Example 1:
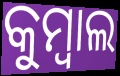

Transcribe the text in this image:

କୁମ୍ବାଲ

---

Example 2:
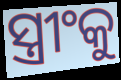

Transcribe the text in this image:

ସ୍ତ୍ରୀଂକୁ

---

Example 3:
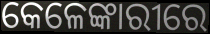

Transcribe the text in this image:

କେଳେଙ୍କାରୀରେ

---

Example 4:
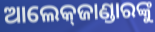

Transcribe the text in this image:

ଆଲେକ୍‌ଜାଣ୍ଡାରଙ୍କୁ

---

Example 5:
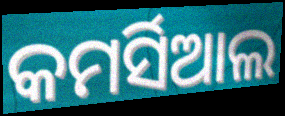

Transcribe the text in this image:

କମର୍ସିଆଲ